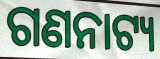
ଗଣନାଟ୍ୟ